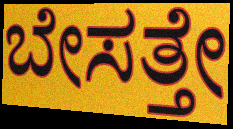
ಬೇಸತ್ತೇ